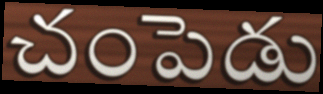
చంపెడు